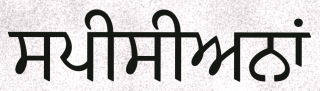
ਸਪੀਸੀਅਨਾਂ